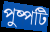
পুষ্পটি